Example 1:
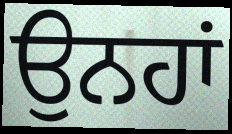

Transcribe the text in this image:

ਉਨਹਾਂ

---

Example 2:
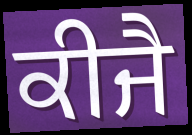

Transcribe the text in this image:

ਕੀਜੈ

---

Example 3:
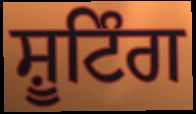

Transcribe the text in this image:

ਸ਼ੂਟਿੰਗ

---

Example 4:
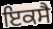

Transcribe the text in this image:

ਇਕਸੈ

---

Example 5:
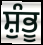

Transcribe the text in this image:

ਸ਼ੁੰਭੂ